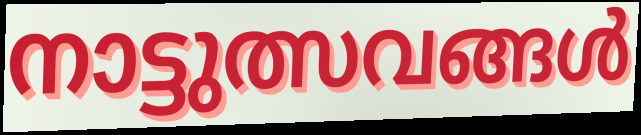
നാട്ടുത്സവങ്ങൾ